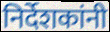
निर्देशकांनी